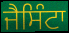
ਜੈਸਿੰਟਾ